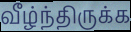
வீழ்ந்திருக்க